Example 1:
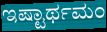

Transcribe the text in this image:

ಇಷ್ಟಾರ್ಥಮಂ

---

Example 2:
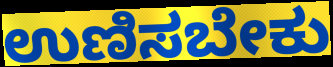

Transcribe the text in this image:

ಉಣಿಸಬೇಕು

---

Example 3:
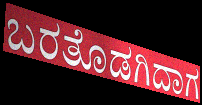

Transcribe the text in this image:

ಬರತೊಡಗಿದಾಗ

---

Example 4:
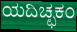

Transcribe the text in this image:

ಯದಿಚ್ಛಕಂ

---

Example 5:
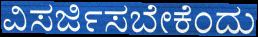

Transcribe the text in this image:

ವಿಸರ್ಜಿಸಬೇಕೆಂದು